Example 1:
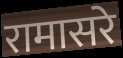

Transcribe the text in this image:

रामासरे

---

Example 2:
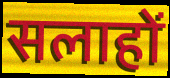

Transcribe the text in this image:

सलाहों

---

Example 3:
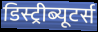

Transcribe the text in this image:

डिस्ट्रीब्यूटर्स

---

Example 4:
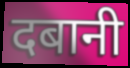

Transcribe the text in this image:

दबानी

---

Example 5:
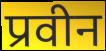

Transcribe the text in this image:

प्रवीन